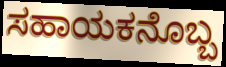
ಸಹಾಯಕನೊಬ್ಬ